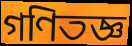
গণিতজ্ঞ